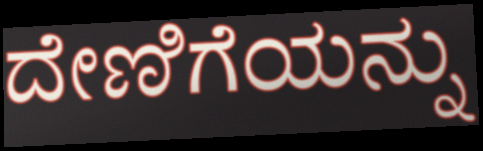
ದೇಣಿಗೆಯನ್ನು